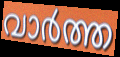
വാർത്ത